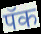
पॅक